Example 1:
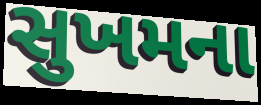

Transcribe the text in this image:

સુખમના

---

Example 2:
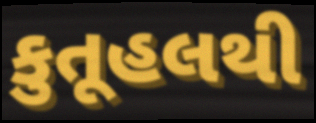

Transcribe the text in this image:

કુતૂહલથી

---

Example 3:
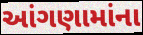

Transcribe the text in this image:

આંગણામાંના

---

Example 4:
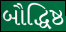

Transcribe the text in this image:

બૌદ્ધિષ્ઠ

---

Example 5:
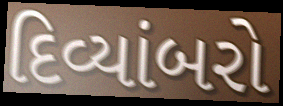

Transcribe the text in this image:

દિવ્યાંબરો